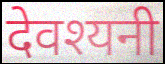
देवश्यनी